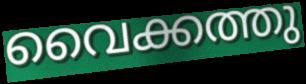
വൈക്കത്തു